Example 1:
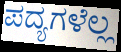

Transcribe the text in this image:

ಪದ್ಯಗಳೆಲ್ಲ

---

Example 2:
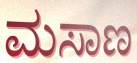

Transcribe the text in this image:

ಮಸಾಣ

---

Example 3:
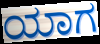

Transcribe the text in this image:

ಯಾಗ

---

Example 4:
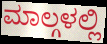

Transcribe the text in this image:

ಮಾಲ್ಗಳಲ್ಲಿ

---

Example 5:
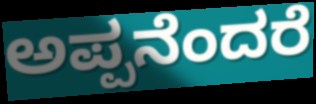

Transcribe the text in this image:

ಅಪ್ಪನೆಂದರೆ